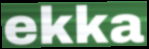
ekka